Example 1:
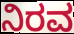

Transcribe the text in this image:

ನಿರವ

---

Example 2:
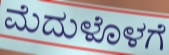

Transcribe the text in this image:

ಮೆದುಳೊಳಗೆ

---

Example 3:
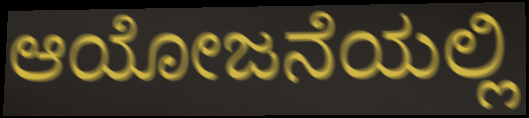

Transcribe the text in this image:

ಆಯೋಜನೆಯಲ್ಲಿ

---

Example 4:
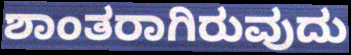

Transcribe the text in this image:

ಶಾಂತರಾಗಿರುವುದು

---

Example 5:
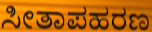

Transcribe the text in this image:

ಸೀತಾಪಹರಣ